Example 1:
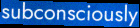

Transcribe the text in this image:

subconsciously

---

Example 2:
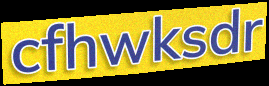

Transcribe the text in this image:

cfhwksdr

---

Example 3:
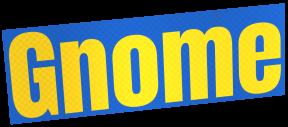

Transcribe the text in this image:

Gnome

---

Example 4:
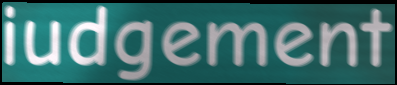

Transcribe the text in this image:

iudgement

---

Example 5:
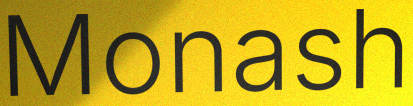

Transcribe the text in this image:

Monash